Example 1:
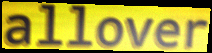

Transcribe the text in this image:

allover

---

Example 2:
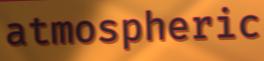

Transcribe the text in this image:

atmospheric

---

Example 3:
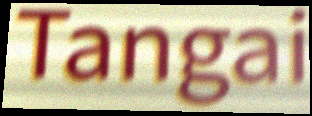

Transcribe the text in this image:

Tangai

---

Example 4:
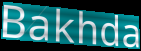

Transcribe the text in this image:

Bakhda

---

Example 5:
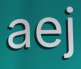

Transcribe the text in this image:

aej